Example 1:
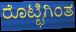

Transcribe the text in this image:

ರೊಟ್ಟಿಗಿಂತ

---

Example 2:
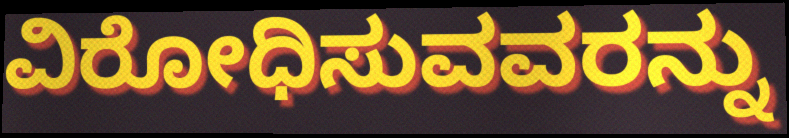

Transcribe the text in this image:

ವಿರೋಧಿಸುವವರನ್ನು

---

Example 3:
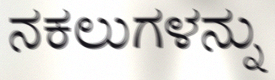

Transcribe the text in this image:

ನಕಲುಗಳನ್ನು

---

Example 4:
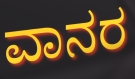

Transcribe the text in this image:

ವಾನರ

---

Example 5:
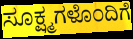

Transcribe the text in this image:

ಸೂಕ್ಷ್ಮಗಳೊಂದಿಗೆ